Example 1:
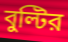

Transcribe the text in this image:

বুল্টির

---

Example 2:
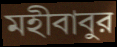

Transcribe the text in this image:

মহীবাবুর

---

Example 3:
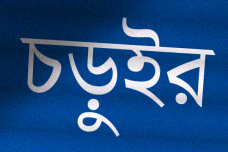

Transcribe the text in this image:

চড়ুইর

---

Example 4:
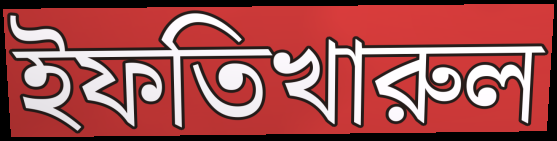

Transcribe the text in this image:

ইফতিখারুল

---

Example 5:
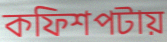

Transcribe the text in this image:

কফিশপটায়